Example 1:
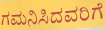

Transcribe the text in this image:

ಗಮನಿಸಿದವರಿಗೆ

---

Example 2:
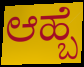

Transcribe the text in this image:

ಆಹ್ಬೆ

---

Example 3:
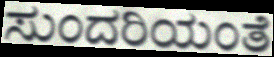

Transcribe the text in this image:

ಸುಂದರಿಯಂತೆ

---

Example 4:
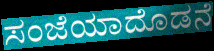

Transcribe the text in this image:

ಸಂಜೆಯಾದೊಡನೆ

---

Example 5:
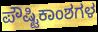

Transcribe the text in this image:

ಪೌಷ್ಟಿಕಾಂಶಗಳ